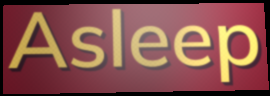
Asleep